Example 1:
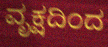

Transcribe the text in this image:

ವೃಕ್ಷದಿಂದ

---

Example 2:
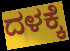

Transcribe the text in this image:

ದಳಕ್ಕೆ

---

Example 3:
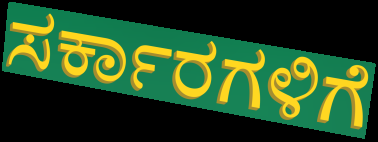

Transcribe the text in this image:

ಸರ್ಕಾರಗಳಿಗೆ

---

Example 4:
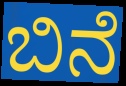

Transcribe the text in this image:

ಬಿನೆ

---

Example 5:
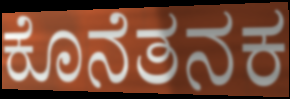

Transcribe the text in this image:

ಕೊನೆತನಕ